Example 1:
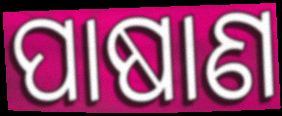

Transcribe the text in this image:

ପାଷାଣ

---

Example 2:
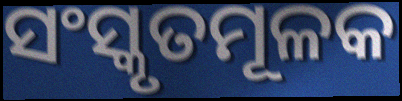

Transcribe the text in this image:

ସଂସ୍କୃତମୂଳକ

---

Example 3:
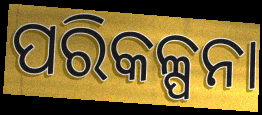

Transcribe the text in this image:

ପରିକଳ୍ପନା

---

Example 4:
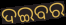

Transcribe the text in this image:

ଦଇବର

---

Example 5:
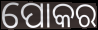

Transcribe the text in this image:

ପୋକର